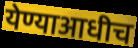
येण्याआधीच